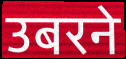
उबरने